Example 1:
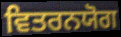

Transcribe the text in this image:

ਵਿਤਰਨਯੋਗ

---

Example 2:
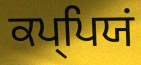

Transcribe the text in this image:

ਕਪ੍ਪਿਯਂ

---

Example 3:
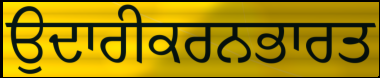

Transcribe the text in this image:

ਉਦਾਰੀਕਰਨਭਾਰਤ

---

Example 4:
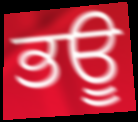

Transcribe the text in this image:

ਭਊ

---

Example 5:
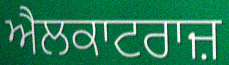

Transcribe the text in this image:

ਐਲਕਾਟਰਾਜ਼